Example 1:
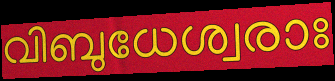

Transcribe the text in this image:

വിബുധേശ്വരാഃ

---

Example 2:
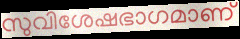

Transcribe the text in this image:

സുവിശേഷഭാഗമാണ്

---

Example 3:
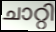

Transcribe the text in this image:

ചാറ്റി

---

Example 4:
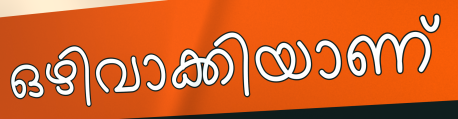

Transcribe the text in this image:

ഒഴിവാക്കിയാണ്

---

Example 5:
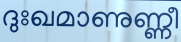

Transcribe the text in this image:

ദുഃഖമാണുണ്ണീ